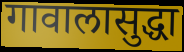
गावालासुद्धा